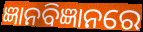
ଜ୍ଞାନବିଜ୍ଞାନରେ